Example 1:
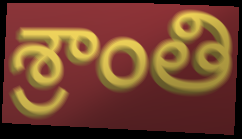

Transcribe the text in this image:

శ్రాంతి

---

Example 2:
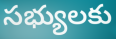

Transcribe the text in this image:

సభ్యులకు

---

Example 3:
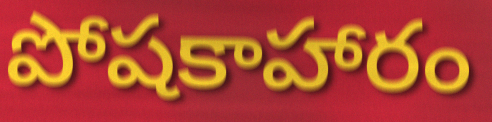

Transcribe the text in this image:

పోషకాహారం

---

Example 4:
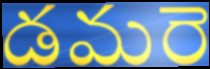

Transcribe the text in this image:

డమరె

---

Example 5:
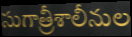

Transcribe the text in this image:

సుగాత్రీశాలీనుల